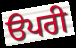
ੳਪਰੀ